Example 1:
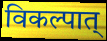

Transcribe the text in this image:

विकल्पात्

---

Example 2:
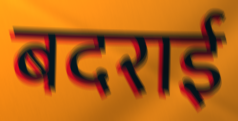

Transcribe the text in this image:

बदराई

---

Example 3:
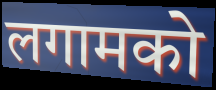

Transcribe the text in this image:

लगामको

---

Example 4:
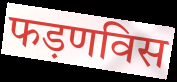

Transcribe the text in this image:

फड़णविस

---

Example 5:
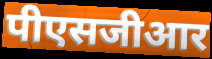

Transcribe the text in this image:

पीएसजीआर